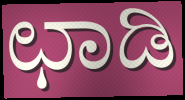
ಛಾಡಿ